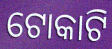
ଟୋକାଟି